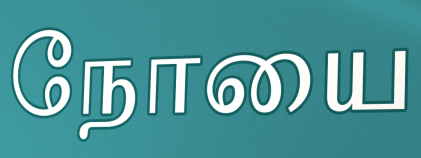
நோயை